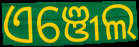
ଏଞ୍ଜେଲ